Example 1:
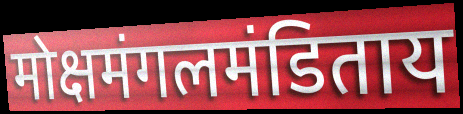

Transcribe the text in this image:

मोक्षमंगलमंडिताय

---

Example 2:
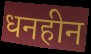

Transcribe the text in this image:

धनहीन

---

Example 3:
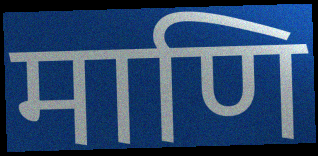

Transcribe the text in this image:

माणि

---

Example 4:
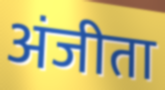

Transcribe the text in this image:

अंजीता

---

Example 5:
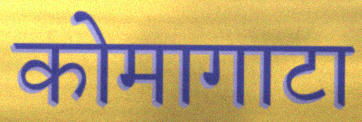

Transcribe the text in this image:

कोमागाटा